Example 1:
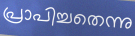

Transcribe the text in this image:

പ്രാപിച്ചതെന്നു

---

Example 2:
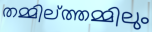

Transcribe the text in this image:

തമ്മില്ത്തമ്മിലും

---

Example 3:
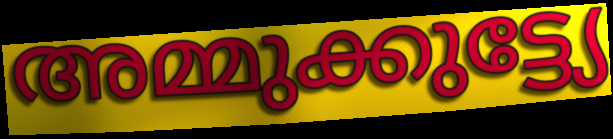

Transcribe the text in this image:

അമ്മുക്കുട്ട്യേ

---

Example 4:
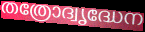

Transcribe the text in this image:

തത്രോദ്വൃദ്ധേന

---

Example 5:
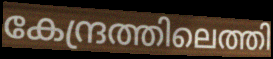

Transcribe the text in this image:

കേന്ദ്രത്തിലെത്തി